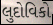
લુદોવિકો